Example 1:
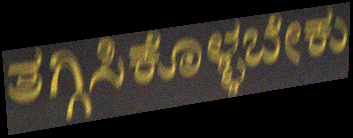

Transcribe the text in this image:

ತಗ್ಗಿಸಿಕೊಳ್ಳಬೇಕು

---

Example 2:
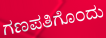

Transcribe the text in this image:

ಗಣಪತಿಗೊಂದು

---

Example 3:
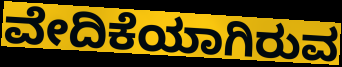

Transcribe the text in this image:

ವೇದಿಕೆಯಾಗಿರುವ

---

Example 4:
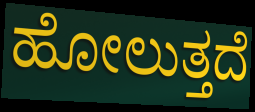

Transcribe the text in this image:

ಹೋಲುತ್ತದೆ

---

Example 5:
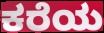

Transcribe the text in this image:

ಕರೆಯ